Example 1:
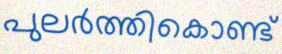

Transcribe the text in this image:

പുലർത്തികൊണ്ട്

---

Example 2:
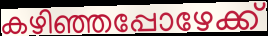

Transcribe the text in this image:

കഴിഞ്ഞപ്പോഴേക്ക്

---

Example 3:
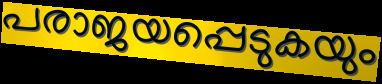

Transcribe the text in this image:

പരാജയപ്പെടുകയും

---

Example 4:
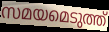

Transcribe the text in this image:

സമയമെടുത്ത്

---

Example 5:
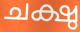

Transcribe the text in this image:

ചക്ഷു